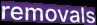
removals